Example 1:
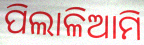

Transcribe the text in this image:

ପିଲାଳିଆମି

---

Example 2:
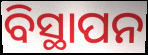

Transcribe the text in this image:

ବିସ୍ଥାପନ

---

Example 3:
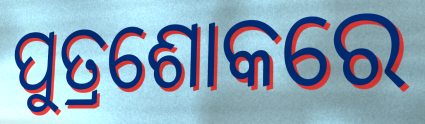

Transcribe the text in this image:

ପୁତ୍ରଶୋକରେ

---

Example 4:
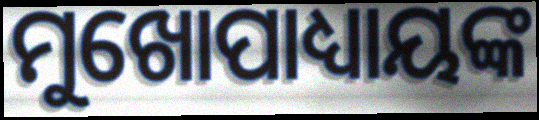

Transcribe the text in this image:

ମୁଖୋପାଧ୍ୟାୟଙ୍କ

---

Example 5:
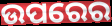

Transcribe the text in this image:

ଉପରେର